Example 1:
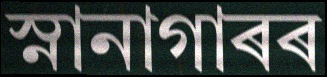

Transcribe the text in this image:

স্নানাগাৰৰ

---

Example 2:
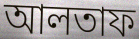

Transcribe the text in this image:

আলতাফ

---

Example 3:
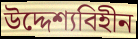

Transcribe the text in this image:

উদ্দেশ্যবিহীন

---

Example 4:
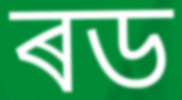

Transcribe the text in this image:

ৰড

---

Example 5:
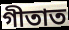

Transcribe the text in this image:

গীতাত